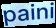
paini